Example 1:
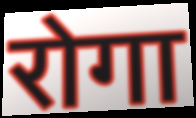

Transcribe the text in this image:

रोगा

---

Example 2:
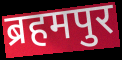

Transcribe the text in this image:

ब्रहमपुर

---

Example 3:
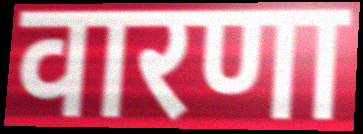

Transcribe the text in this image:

वारणा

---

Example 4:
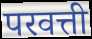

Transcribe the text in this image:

परवत्ती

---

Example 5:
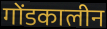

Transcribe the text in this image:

गोंडकालीन